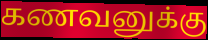
கணவனுக்கு